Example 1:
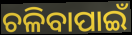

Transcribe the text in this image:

ଚଳିବାପାଇଁ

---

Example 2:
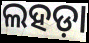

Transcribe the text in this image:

ଲହଡ଼ା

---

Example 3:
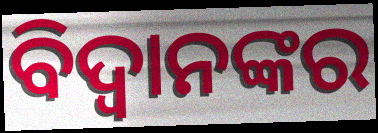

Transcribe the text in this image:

ବିଦ୍ୱାନଙ୍କର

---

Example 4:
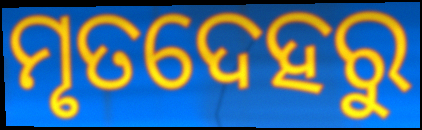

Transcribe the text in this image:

ମୃତଦେହରୁ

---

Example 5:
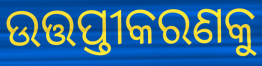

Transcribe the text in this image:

ଉତ୍ତପ୍ତୀକରଣକୁ